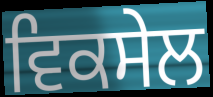
ਵਿਕਸੇਲ